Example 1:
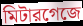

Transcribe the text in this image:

মিটারগেজে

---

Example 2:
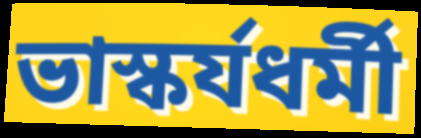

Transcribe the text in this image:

ভাস্কর্যধর্মী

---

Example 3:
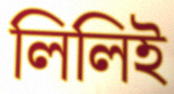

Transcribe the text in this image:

লিলিই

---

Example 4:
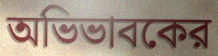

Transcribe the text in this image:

অভিভাবকের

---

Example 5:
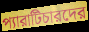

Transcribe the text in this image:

প্যারাটিচারদের